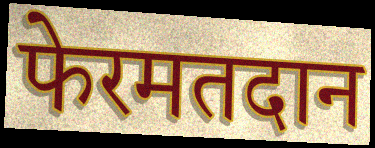
फेरमतदान